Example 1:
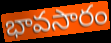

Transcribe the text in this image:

భావసారం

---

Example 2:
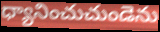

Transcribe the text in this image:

ధ్యానించుచుండెను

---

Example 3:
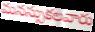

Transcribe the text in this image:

మనస్సుకలవారు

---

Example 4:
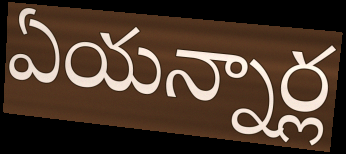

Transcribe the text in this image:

ఏయన్నార్ల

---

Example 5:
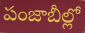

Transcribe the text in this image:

పంజాబీల్లో